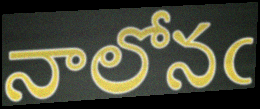
నాలోనఁ